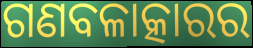
ଗଣବଳାତ୍କାରର